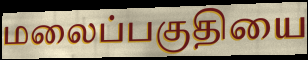
மலைப்பகுதியை